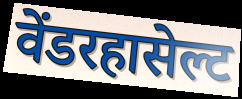
वेंडरहासेल्ट